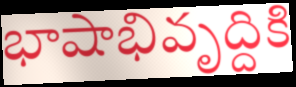
భాషాభివృద్దికి